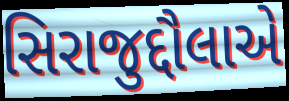
સિરાજુદ્દૌલાએ